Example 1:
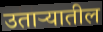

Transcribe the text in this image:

उताऱ्यातील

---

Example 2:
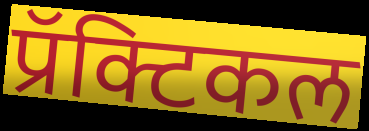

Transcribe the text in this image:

प्रॅक्टिकल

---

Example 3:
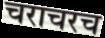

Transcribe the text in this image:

चराचरच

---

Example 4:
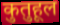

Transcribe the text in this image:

कुतुहूल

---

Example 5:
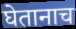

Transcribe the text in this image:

घेतानाच